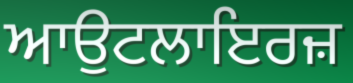
ਆਉਟਲਾਇਰਜ਼